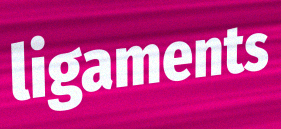
ligaments